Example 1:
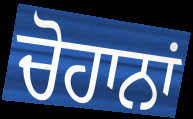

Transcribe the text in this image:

ਚੋਹਾਨਾਂ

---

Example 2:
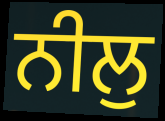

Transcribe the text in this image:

ਨੀਲੁ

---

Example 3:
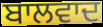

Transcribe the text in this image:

ਬਾਲਵਾਦ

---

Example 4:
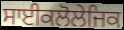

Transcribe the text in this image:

ਸਾਈਕਲੋਲੇਜਿਕ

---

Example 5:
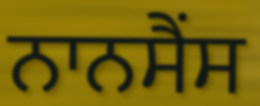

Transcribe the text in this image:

ਨਾਨਸੈਂਸ